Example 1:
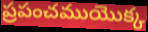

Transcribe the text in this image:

ప్రపంచముయొక్క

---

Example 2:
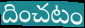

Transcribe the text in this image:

దించటం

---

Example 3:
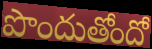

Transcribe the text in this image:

పొందుతోందో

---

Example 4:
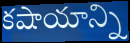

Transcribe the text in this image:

కషాయాన్ని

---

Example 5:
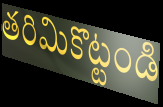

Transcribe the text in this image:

తరిమికొట్టండి